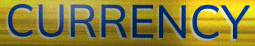
CURRENCY